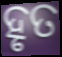
ହୃତ